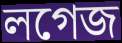
লগেজ